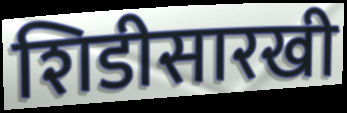
शिडीसारखी